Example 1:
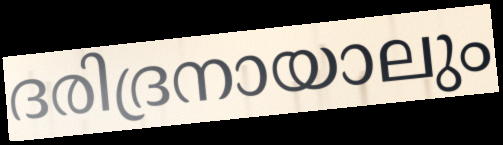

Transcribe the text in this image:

ദരിദ്രനായാലും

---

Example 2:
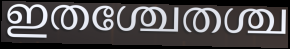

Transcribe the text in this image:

ഇതശ്ചേതശ്ച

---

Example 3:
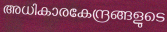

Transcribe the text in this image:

അധികാരകേന്ദ്രങ്ങളുടെ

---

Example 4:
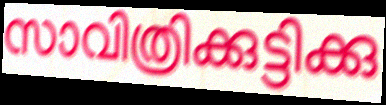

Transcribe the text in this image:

സാവിത്രിക്കുട്ടിക്കു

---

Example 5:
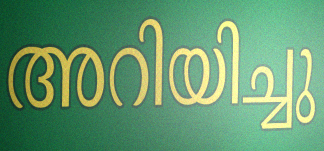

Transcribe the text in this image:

അറിയിച്ചു